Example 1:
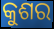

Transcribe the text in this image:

କୁଶର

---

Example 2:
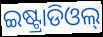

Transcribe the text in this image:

ଇଷ୍ଟ୍ରାଡିଓଲ୍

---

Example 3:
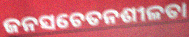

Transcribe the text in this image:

ଜନସଚେତନଶୀଳତା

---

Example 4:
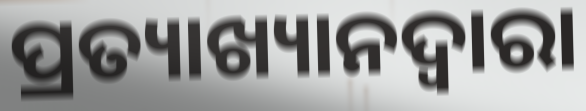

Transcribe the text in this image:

ପ୍ରତ୍ୟାଖ୍ୟାନଦ୍ଵାରା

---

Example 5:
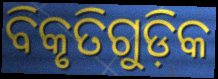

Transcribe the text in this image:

ବିକୃତିଗୁଡ଼ିକ